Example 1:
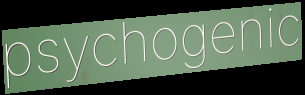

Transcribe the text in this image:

psychogenic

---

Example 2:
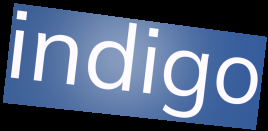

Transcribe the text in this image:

indigo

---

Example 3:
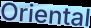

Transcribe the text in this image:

Oriental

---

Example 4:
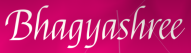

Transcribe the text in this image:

Bhagyashree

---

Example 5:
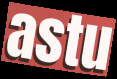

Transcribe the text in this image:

astu